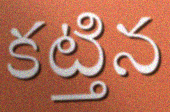
కట్తిన